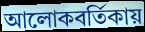
আলোকবর্তিকায়